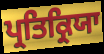
ਪ੍ਰਤਿਕ੍ਰਿਯਾ